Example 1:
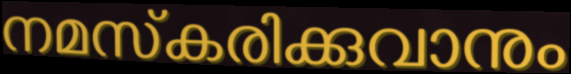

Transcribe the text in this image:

നമസ്‌കരിക്കുവാനും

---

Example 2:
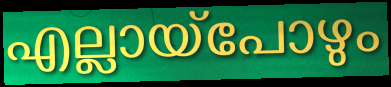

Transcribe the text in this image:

എല്ലായ്പോഴും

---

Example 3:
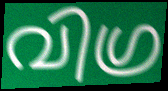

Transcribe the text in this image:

വിഗ്ര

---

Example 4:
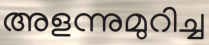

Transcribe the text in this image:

അളന്നുമുറിച്ച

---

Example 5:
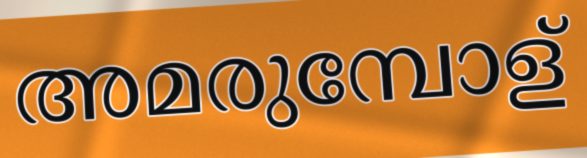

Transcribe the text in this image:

അമരുമ്പോള്